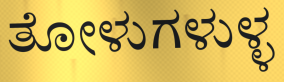
ತೋಳುಗಳುಳ್ಳ